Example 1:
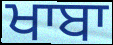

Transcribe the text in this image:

ਖਾਬਾ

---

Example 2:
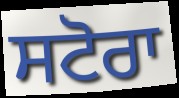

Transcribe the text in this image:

ਸਟੋਰਾ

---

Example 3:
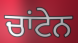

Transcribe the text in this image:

ਚਾਂਟੇਨ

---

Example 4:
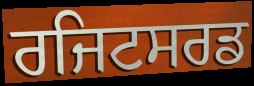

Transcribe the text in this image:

ਰਜਿਟਸਰਡ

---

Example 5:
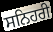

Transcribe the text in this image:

ਸਨਿਹਰੀ